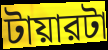
টায়ারটা